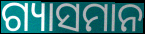
ଗ୍ୟାସମାନ